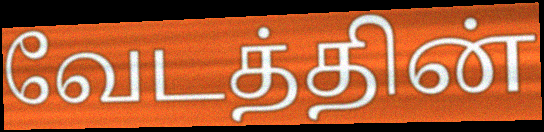
வேடத்தின்